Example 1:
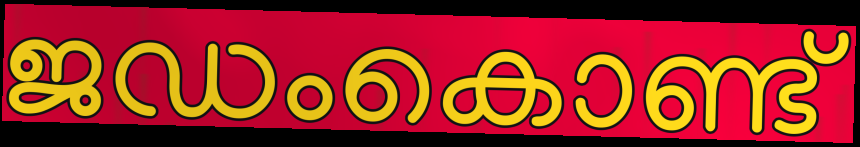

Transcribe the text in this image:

ജഡംകൊണ്ട്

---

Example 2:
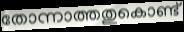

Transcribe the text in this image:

തോന്നാത്തതുകൊണ്ട്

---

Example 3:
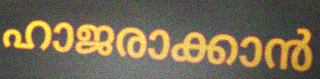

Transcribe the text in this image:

ഹാജരാക്കാൻ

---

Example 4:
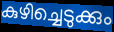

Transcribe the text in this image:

കുഴിച്ചെടുക്കും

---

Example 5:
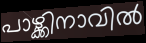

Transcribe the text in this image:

പാഴ്ക്കിനാവിൽ